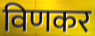
विणकर